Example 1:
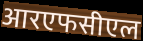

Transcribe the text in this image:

आरएफसीएल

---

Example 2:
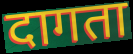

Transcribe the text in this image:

दागता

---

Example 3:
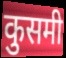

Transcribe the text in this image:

कुसमी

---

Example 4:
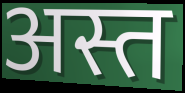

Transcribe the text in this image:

अस्त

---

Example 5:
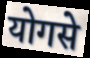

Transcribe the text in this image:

योगसे